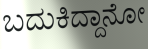
ಬದುಕಿದ್ದಾನೋ